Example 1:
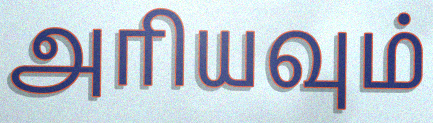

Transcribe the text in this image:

அரியவும்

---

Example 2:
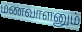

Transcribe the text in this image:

மணவாளனும்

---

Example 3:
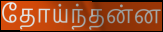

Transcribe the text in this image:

தோய்ந்தன்ன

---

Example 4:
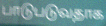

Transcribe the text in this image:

பாடுபடுவதாக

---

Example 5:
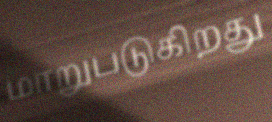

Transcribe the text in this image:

மாறுபடுகிறது